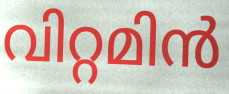
വിറ്റമിൻ